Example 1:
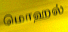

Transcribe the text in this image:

மொஹல்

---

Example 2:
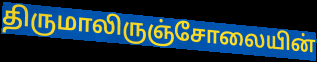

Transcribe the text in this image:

திருமாலிருஞ்சோலையின்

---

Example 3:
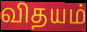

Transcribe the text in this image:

விதயம்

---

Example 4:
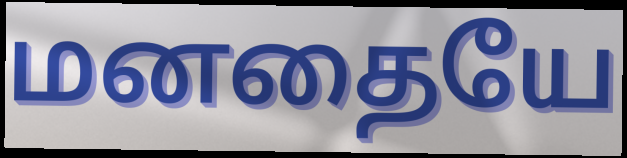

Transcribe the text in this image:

மனதையே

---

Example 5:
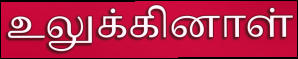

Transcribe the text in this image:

உலுக்கினாள்